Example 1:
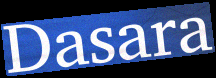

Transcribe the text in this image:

Dasara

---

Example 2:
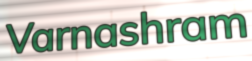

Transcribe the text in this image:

Varnashram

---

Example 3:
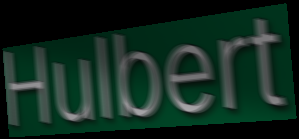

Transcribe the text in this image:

Hulbert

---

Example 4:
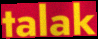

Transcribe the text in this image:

talak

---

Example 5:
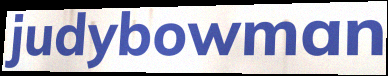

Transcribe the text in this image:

judybowman